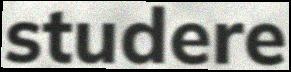
studere